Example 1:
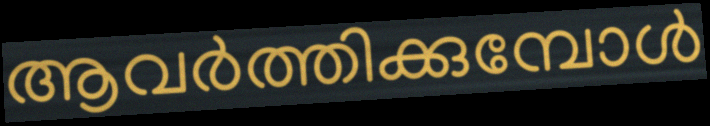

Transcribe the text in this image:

ആവർത്തിക്കുമ്പോൾ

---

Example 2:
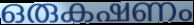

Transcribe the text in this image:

ഒരുകഷണം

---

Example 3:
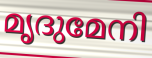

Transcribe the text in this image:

മൃദുമേനി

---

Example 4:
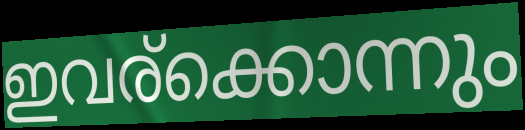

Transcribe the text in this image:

ഇവര്ക്കൊന്നും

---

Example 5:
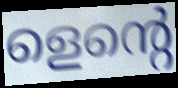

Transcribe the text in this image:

ളെന്റെ